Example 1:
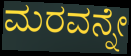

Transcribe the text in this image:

ಮರವನ್ನೇ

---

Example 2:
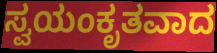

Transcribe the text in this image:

ಸ್ವಯಂಕೃತವಾದ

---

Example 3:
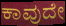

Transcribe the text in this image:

ಕಾವುದೇ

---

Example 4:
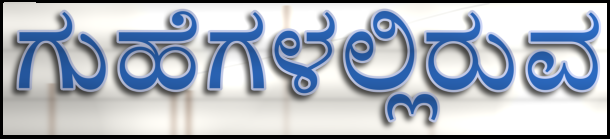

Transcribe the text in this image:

ಗುಹೆಗಳಲ್ಲಿರುವ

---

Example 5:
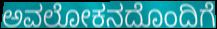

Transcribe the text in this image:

ಅವಲೋಕನದೊಂದಿಗೆ